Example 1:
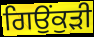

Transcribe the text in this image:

ਗਿਉਂਕੁੜੀ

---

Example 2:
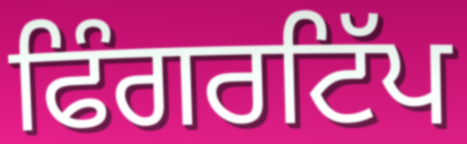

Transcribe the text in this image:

ਫਿੰਗਰਟਿੱਪ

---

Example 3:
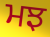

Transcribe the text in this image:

ਮਝ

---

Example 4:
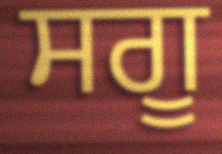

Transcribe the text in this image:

ਸਗੂ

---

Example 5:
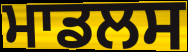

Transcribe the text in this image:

ਮਾਡਲਸ